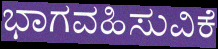
ಭಾಗವಹಿಸುವಿಕೆ